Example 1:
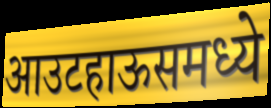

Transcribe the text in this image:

आउटहाऊसमध्ये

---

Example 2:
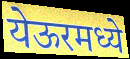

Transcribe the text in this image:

येऊरमध्ये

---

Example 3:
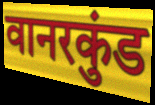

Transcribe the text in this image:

वानरकुंड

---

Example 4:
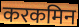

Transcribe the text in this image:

करकमिन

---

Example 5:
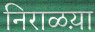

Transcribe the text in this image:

निराळय़ा